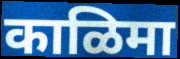
काळिमा